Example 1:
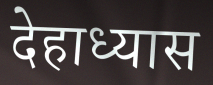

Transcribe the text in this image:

देहाध्यास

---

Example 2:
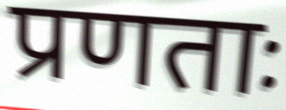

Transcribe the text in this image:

प्रणताः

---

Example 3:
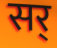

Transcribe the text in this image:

सर्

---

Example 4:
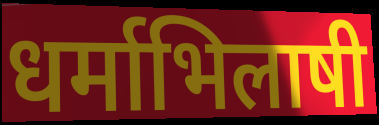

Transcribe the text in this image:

धर्माभिलाषी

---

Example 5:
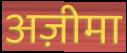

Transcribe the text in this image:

अज़ीमा